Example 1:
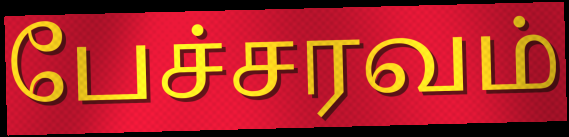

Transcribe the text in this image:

பேச்சரவம்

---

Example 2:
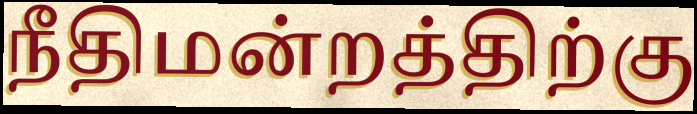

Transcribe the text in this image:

நீதிமன்றத்திற்கு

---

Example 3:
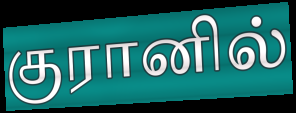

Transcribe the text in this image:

குரானில்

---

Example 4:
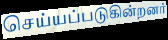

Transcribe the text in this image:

செய்யப்படுகின்றனர்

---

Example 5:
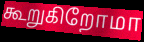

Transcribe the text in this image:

கூறுகிறோமா